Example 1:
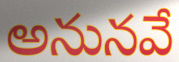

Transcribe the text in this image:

అనునవే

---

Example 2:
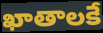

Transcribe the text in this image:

ఖాతాలకే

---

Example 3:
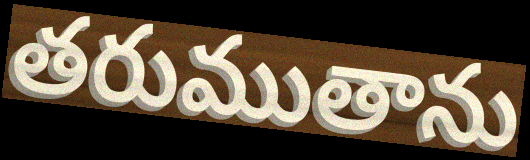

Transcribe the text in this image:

తరుముతాను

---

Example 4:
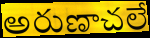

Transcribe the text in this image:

అరుణాచలే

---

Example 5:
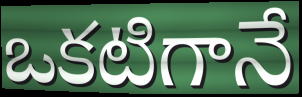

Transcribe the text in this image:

ఒకటిగానే